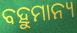
ବହୁମାନ୍ୟ